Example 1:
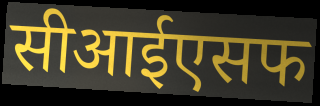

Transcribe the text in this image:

सीआईएसफ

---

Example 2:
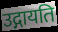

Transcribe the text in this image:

उद्गायति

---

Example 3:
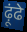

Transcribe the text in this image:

ढ़ूंढे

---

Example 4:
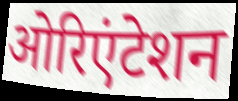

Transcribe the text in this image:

ओरिएंटेशन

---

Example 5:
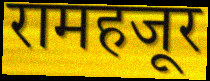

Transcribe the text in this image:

रामहजूर